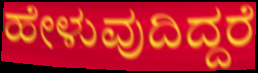
ಹೇಳುವುದಿದ್ದರೆ